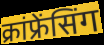
क्रांफ्रेंसिंग